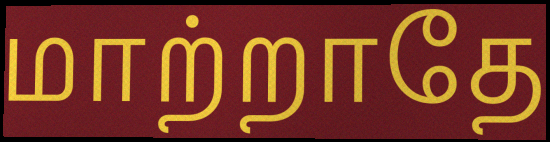
மாற்றாதே